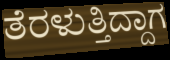
ತೆರಳುತ್ತಿದ್ದಾಗ